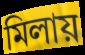
মিলায়